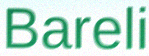
Bareli